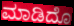
ಮಾಡಿದೊ